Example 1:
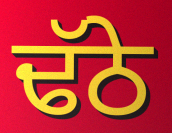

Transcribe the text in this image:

ਢੱਠੇ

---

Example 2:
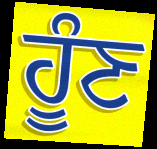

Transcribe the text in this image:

ਹੂੰਣ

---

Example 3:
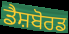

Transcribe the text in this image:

ਡੈਸ਼ਬੋਰਡ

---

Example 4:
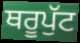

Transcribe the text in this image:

ਥਰੂਪੁੱਟ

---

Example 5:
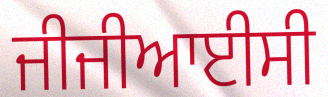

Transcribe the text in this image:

ਜੀਜੀਆਈਸੀ